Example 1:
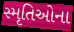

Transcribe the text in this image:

સ્મૃતિઓના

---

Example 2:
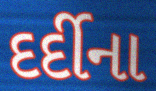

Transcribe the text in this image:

દર્દીના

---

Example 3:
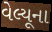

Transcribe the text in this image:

વેલ્યૂના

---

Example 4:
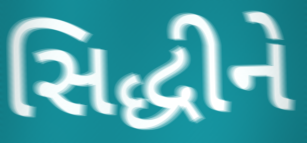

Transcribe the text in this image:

સિદ્ધીને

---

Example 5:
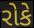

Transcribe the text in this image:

રોકે